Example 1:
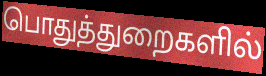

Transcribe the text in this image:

பொதுத்துறைகளில்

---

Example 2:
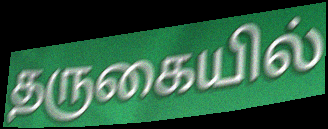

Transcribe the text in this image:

தருகையில்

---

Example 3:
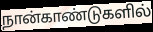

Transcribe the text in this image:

நான்காண்டுகளில்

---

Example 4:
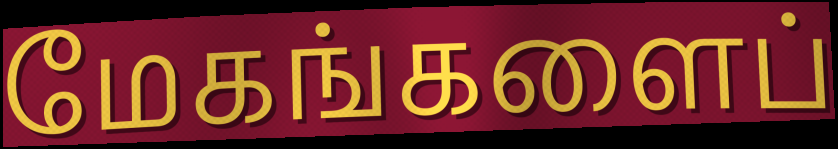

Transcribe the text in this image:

மேகங்களைப்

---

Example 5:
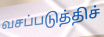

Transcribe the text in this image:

வசப்படுத்திச்